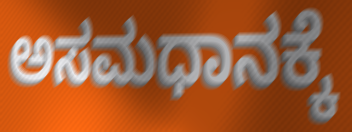
ಅಸಮಧಾನಕ್ಕೆ